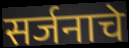
सर्जनाचे